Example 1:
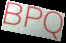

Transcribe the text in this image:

BPQ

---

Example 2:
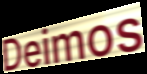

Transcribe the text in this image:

Deimos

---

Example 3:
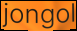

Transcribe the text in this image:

jongol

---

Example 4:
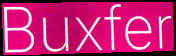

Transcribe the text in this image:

Buxfer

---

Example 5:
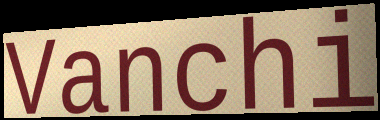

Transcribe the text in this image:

Vanchi